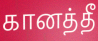
கானத்தீ